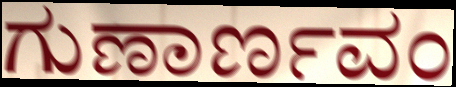
ಗುಣಾರ್ಣವಂ